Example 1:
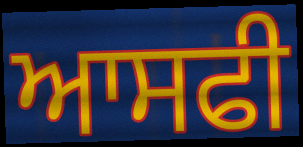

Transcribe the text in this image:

ਆਸਫੀ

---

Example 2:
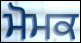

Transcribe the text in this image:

ਮੋਮਕ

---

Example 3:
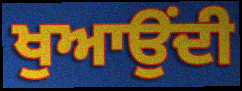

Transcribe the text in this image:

ਖੁਆਉਂਦੀ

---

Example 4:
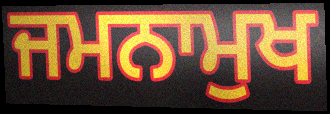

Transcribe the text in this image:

ਜਮਨਾਮੁਖ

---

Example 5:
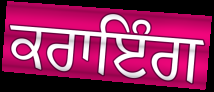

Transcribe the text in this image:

ਕਰਾਇੰਗ